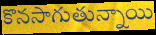
కొనసాగుతున్నాయి